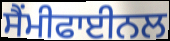
ਸੈਂਮੀਫਾਈਨਲ